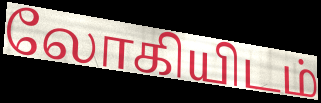
லோகியிடம்